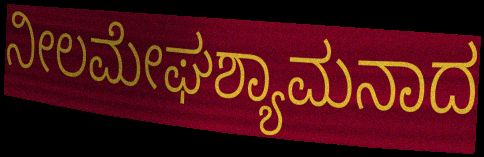
ನೀಲಮೇಘಶ್ಯಾಮನಾದ